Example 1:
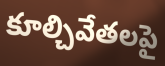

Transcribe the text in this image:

కూల్చివేతలపై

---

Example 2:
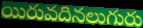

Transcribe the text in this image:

యిరువదినలుగురు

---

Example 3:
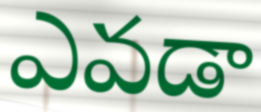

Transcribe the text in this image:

ఎవడా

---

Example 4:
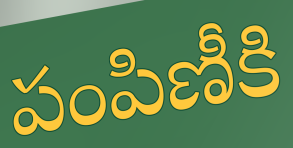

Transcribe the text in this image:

పంపిణీకి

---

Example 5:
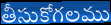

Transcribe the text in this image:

తీసుకోగలము